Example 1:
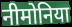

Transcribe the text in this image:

नीमोनिया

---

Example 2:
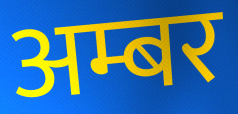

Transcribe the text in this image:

अम्‍बर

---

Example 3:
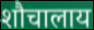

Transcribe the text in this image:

शौचालाय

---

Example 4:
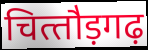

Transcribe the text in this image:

चित्‍तौड़गढ़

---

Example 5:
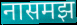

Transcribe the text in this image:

नासमझ